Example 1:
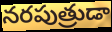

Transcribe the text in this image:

నరపుత్రుడా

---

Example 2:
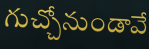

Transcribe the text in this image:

గుచ్చోనుండావే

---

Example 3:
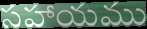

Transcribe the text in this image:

సహాయము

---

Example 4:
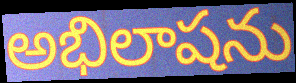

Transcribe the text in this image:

అభిలాషను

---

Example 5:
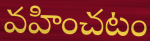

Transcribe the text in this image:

వహించటం